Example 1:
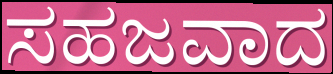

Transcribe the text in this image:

ಸಹಜವಾದ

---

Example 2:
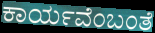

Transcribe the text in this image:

ಕಾರ್ಯವೆಂಬಂತೆ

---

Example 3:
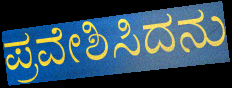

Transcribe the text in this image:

ಪ್ರವೇಶಿಸಿದನು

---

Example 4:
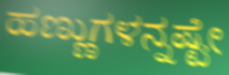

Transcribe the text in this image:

ಹಣ್ಣುಗಳನ್ನಷ್ಟೇ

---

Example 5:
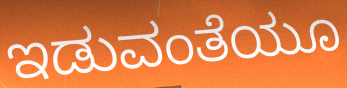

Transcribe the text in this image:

ಇಡುವಂತೆಯೂ